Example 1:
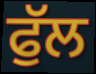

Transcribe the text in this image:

ਫੁੱਲ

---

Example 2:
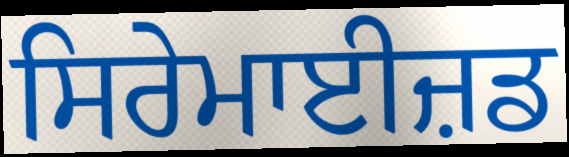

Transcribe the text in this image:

ਸਿਰੇਮਾਈਜ਼ਡ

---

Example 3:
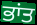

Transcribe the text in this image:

ਭਾਂਤ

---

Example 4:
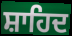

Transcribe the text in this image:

ਸ਼ਾਹਿਦ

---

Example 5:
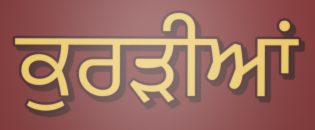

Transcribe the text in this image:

ਕੁਰੜੀਆਂ